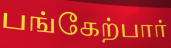
பங்கேற்பார்